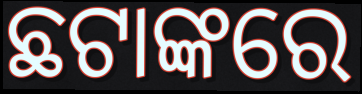
ଛଟାଙ୍କରେ